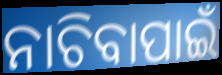
ନାଚିବାପାଇଁ